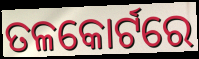
ତଳକୋର୍ଟରେ